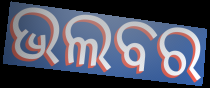
ଭଲବର